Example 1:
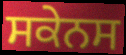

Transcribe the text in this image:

ਸਕੇਨਸ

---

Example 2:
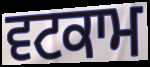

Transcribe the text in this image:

ਵਟਕਾਮ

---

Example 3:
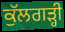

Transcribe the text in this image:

ਕੁੱਲਗੜ੍ਹੀ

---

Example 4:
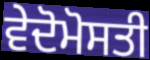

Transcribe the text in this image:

ਵੇਦੋਮੋਸਤੀ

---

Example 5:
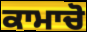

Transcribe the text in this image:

ਕਾਮਾਚੋ